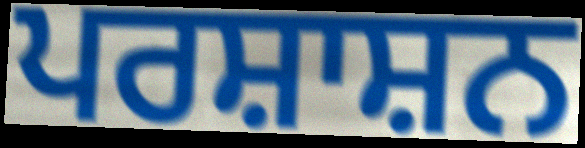
ਪਰਸ਼ਾਸ਼ਨ